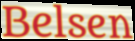
Belsen